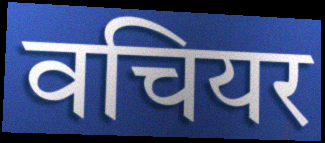
वचियर